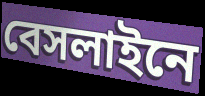
বেসলাইনে